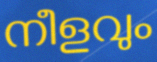
നീളവും